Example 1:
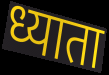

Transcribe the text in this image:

ध्याता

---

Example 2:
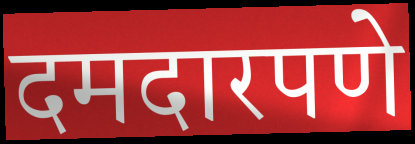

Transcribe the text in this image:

दमदारपणे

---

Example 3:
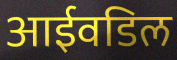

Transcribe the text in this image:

आईवडिल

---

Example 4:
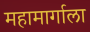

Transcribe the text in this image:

महामार्गाला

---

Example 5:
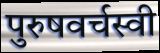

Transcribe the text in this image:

पुरुषवर्चस्वी